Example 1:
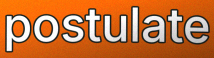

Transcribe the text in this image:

postulate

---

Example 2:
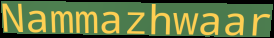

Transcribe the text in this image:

Nammazhwaar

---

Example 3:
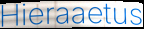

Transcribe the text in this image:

Hieraaetus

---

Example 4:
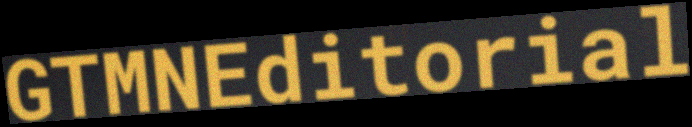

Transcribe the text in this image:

GTMNEditorial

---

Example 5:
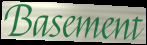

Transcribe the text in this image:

Basement